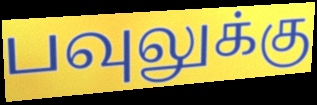
பவுலுக்கு